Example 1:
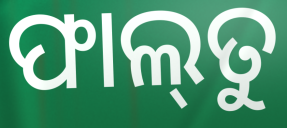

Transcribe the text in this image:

ଫାଲ୍‌ତୁ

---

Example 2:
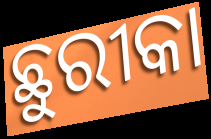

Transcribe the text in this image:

ଛୁରୀକା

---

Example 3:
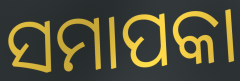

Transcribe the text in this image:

ସମାପକା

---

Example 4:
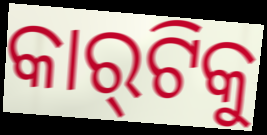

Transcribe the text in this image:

କାର୍‌ଟିକୁ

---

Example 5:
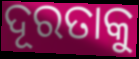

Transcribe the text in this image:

ଦୂରତାକୁ